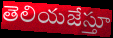
తెలియజేస్తూ